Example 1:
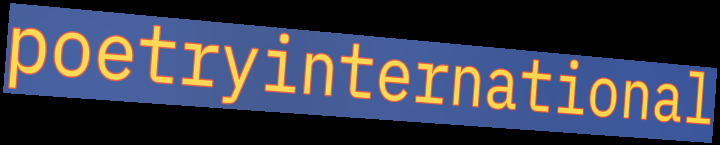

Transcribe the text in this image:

poetryinternational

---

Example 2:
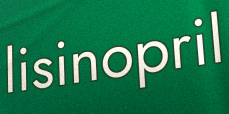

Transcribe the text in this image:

lisinopril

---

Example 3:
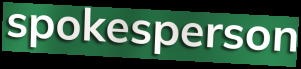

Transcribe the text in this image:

spokesperson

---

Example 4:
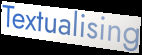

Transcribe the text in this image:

Textualising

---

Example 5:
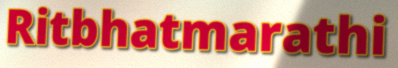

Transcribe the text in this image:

Ritbhatmarathi